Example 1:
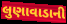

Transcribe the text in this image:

લુણાવાડાની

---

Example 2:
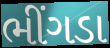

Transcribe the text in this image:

ભીંગડા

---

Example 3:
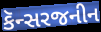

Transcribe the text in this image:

કૅન્સરજનીન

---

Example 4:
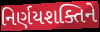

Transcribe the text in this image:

નિર્ણયશક્તિને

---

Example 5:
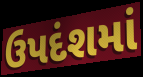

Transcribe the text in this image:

ઉપદંશમાં